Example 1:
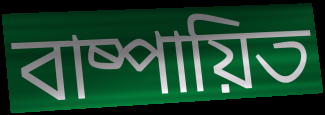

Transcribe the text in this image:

বাষ্পায়িত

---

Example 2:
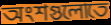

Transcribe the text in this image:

অংশগুলোতে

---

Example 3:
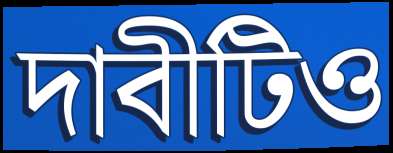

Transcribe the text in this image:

দাবীটিও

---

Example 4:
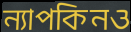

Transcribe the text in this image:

ন্যাপকিনও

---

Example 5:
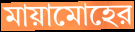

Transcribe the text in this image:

মায়ামোহের